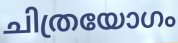
ചിത്രയോഗം